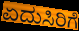
ಏದುಸಿರಿಗೆ